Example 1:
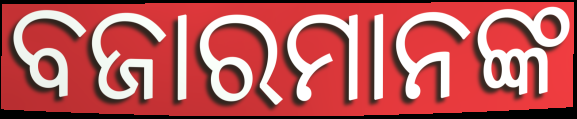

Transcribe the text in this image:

ବଜାରମାନଙ୍କ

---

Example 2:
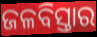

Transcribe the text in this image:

ଜଳବିସ୍ତାର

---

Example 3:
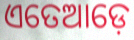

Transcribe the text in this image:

ଏତେଆଡ଼େ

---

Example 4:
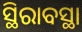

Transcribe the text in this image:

ସ୍ଥିରାବସ୍ଥା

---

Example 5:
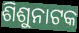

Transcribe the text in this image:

ଶିଶୁନାଟକ